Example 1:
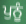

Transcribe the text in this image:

ਪੁਨੂੰ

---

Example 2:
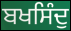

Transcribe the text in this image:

ਬਖਸਿੰਦੁ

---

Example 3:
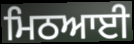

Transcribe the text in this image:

ਮਿਠਆਈ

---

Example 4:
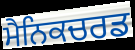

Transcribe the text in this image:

ਮੈਨਿਕਚਰਡ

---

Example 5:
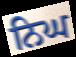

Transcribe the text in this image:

ਨਿਘ